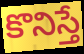
కొనిస్తే